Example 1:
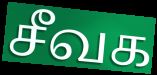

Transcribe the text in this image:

சீவக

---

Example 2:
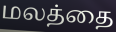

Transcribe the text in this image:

மலத்தை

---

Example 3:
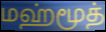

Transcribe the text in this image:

மஹ்மூத்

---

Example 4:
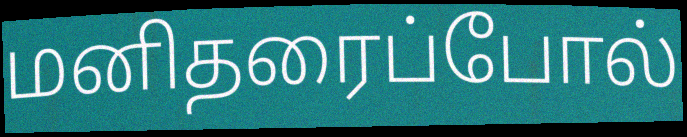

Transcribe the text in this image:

மனிதரைப்போல்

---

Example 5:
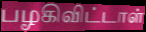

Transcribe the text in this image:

பழகிவிட்டாள்